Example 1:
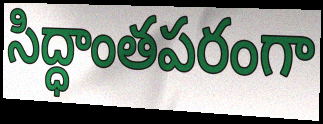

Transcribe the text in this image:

సిద్ధాంతపరంగా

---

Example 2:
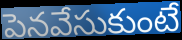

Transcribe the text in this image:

పెనవేసుకుంటే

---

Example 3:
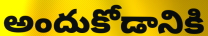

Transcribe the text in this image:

అందుకోడానికి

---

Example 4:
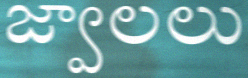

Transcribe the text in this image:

జ్వాలలు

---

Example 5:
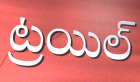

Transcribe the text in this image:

ట్రయిల్